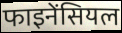
फाइनेंसियल